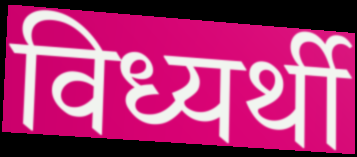
विध्यर्थी